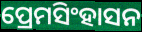
ପ୍ରେମସିଂହାସନ